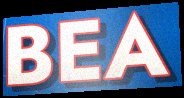
BEA